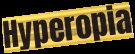
Hyperopia